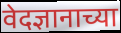
वेदज्ञानाच्या